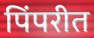
पिंपरीत